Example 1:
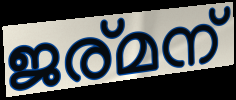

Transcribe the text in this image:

ജര്മന്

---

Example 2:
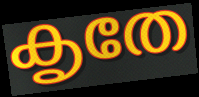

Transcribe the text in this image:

കൃതേ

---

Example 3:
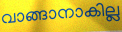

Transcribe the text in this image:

വാങ്ങാനാകില്ല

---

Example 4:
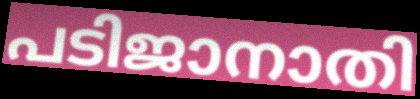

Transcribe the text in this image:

പടിജാനാതി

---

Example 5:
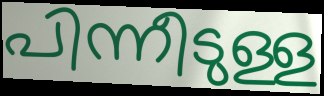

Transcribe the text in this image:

പിന്നീടുള്ള